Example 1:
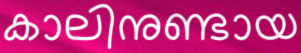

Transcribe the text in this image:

കാലിനുണ്ടായ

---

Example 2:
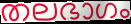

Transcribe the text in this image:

തലഭാഗം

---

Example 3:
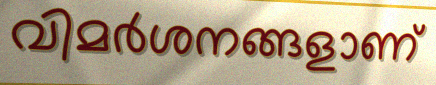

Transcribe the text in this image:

വിമർശനങ്ങളാണ്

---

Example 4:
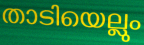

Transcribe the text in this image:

താടിയെല്ലും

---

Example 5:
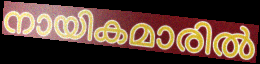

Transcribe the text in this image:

നായികമാരിൽ